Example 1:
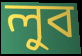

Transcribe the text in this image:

লুব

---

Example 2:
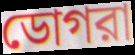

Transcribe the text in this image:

ডোগরা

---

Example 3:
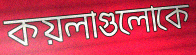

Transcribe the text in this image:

কয়লাগুলোকে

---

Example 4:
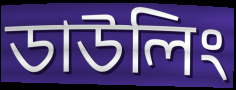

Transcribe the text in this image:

ডাউলিং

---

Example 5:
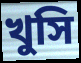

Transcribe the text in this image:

খুসি